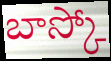
బాస్కో